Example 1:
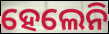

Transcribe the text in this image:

ହେଲେନି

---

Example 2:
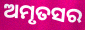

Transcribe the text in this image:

ଅମୃତସର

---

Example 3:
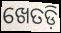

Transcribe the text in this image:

ଖେତଡ଼ି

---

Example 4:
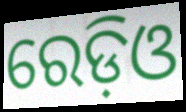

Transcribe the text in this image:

ରେଡ଼ିଓ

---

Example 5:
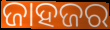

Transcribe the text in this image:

ଜାହଜର